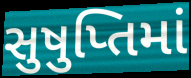
સુષુપ્તિમાં